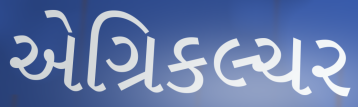
એગ્રિકલ્ચર